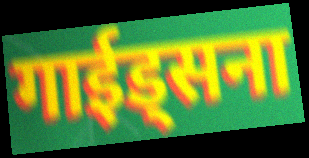
गाईड्सना